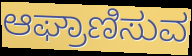
ಆಘ್ರಾಣಿಸುವ